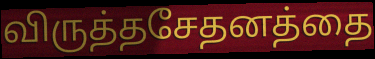
விருத்தசேதனத்தை